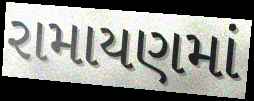
રામાયણમાં